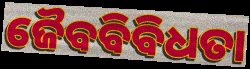
ଜୈବବିବିଧତା